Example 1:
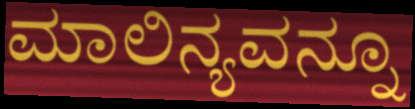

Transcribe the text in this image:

ಮಾಲಿನ್ಯವನ್ನೂ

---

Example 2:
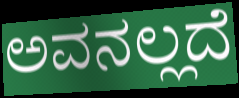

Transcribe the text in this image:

ಅವನಲ್ಲದೆ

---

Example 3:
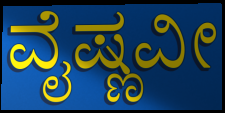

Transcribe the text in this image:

ವೈಷ್ಣವೀ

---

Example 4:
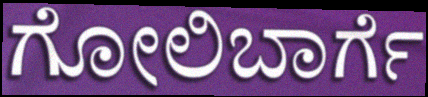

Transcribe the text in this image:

ಗೋಲಿಬಾರ್ಗೆ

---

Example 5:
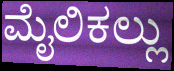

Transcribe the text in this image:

ಮೈಲಿಕಲ್ಲು